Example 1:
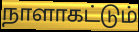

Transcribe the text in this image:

நாளாகட்டும்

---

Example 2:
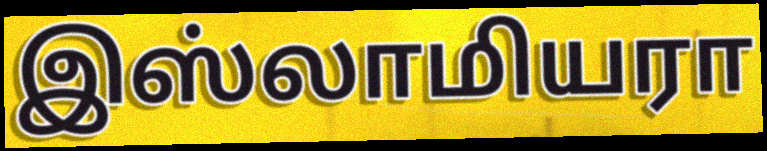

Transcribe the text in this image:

இஸ்லாமியரா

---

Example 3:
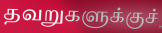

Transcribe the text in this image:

தவறுகளுக்குச்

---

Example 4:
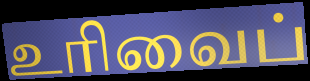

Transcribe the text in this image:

உரிவைப்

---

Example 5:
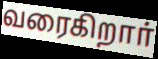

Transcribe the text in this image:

வரைகிறார்